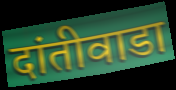
दांतीवाडा